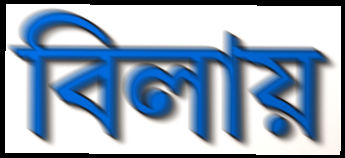
বিলায়